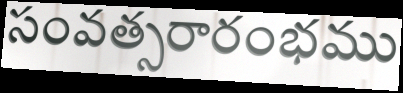
సంవత్సరారంభము